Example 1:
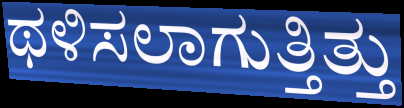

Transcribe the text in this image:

ಥಳಿಸಲಾಗುತ್ತಿತ್ತು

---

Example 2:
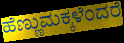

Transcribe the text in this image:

ಹೆಣ್ಣುಮಕ್ಕಳೆಂದರೆ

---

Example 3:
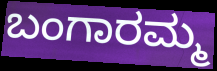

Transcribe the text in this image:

ಬಂಗಾರಮ್ಮ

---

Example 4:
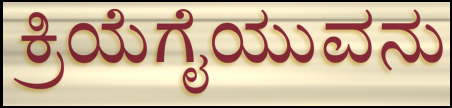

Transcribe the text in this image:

ಕ್ರಿಯೆಗೈಯುವನು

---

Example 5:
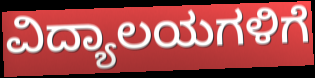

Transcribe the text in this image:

ವಿದ್ಯಾಲಯಗಳಿಗೆ